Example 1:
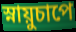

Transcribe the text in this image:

স্নায়ুচাপে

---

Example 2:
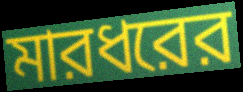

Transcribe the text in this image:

মারধরের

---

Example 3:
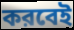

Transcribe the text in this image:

করবেই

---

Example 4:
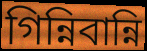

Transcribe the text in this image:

গিন্নিবান্নি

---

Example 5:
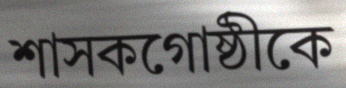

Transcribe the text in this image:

শাসকগোষ্ঠীকে